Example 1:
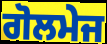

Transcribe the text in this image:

ਗੋਲਮੇਜ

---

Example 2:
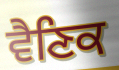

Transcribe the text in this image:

ਵੈਣਿਕ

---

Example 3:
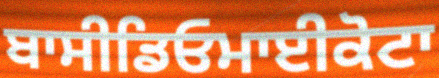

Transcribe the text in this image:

ਬਾਸੀਡਿਓਮਾਈਕੋਟਾ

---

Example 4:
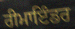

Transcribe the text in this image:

ਰੀਮਾਇੰਡਰ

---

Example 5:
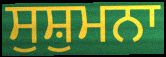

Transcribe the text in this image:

ਸੁਸ਼ੁਮਨਾ